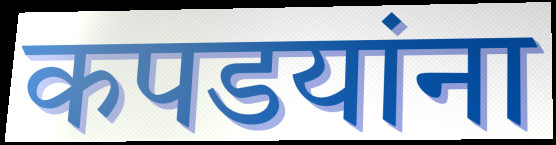
कपडयांना